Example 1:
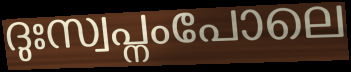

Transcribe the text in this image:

ദുഃസ്വപ്നംപോലെ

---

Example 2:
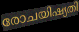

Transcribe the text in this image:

രോചയിഷ്യതി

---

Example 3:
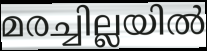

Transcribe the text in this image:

മരച്ചില്ലയിൽ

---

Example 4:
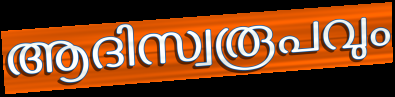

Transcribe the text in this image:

ആദിസ്വരൂപവും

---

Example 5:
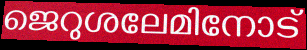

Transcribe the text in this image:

ജെറുശലേമിനോട്